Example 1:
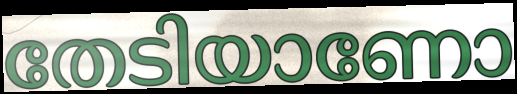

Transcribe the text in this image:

തേടിയാണോ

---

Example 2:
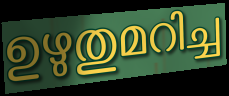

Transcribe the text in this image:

ഉഴുതുമറിച്ച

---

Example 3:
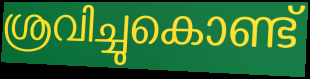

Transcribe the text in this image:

ശ്രവിച്ചുകൊണ്ട്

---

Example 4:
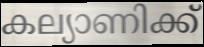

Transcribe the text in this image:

കല്യാണിക്ക്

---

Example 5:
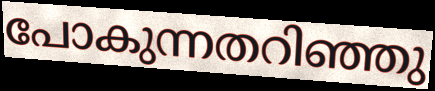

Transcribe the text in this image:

പോകുന്നതറിഞ്ഞു